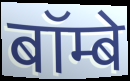
बॉम्‍बे